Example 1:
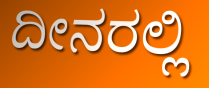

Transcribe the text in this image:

ದೀನರಲ್ಲಿ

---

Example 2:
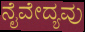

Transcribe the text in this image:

ನೈವೇದ್ಯವು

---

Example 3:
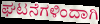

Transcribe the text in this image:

ಘಟನೆಗಳಿಂದಾಗಿ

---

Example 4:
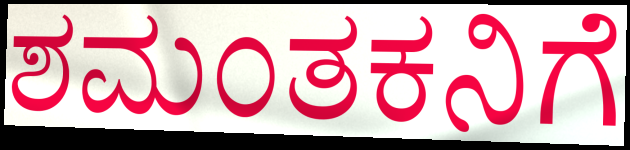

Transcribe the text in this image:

ಶಮಂತಕನಿಗೆ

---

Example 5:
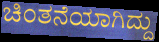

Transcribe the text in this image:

ಚಿಂತನೆಯಾಗಿದ್ದು